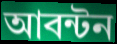
আবন্টন